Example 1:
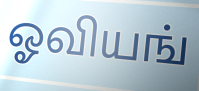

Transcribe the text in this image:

ஓவியங்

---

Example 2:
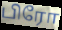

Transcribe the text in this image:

பிரோ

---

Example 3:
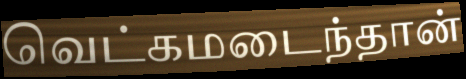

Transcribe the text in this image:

வெட்கமடைந்தான்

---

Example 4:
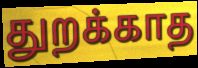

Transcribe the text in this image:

துறக்காத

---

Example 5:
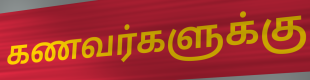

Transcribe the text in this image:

கணவர்களுக்கு